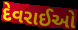
દેવરાઈઓ